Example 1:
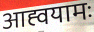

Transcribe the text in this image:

आह्वयामः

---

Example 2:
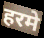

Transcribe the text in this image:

हरमे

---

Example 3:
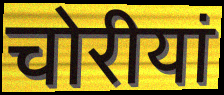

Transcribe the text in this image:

चोरीयां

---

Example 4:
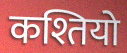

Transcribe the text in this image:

कश्तियो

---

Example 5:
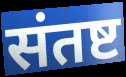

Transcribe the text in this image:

संतष्ट